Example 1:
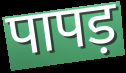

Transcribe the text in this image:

पापड़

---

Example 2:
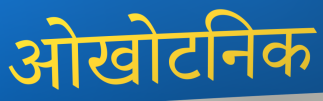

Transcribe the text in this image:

ओखोटनिक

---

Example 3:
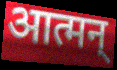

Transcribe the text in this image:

आत्मन्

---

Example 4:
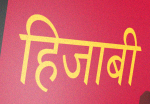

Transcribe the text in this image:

हिजाबी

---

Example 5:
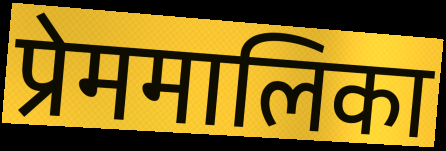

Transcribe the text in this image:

प्रेममालिका